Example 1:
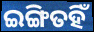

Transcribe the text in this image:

ଇଙ୍ଗିତହିଁ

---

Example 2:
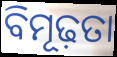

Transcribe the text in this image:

ବିମୂଢ଼ତା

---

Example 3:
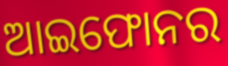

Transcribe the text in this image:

ଆଇଫୋନର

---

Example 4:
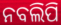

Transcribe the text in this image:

ନବଲିପି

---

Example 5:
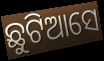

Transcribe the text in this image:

ଛୁଟିଆସେ